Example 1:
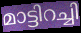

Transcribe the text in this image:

മാട്ടിറച്ചി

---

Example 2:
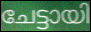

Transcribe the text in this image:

ചേട്ടായി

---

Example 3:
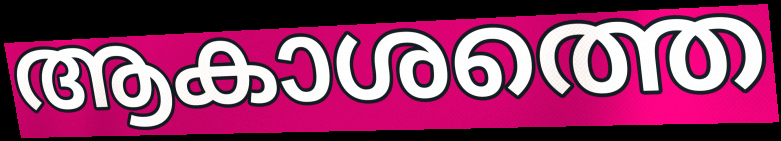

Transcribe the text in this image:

ആകാശത്തെ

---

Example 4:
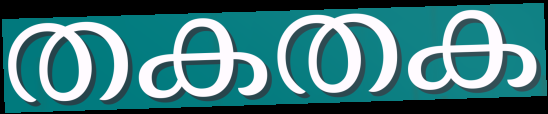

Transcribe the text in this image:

തകതക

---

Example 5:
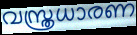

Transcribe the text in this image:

വസ്ത്രധാരണ